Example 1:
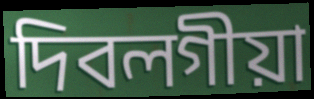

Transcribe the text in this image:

দিবলগীয়া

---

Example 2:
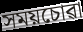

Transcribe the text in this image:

সময়চোৱা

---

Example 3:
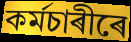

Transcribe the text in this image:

কৰ্মচাৰীৰে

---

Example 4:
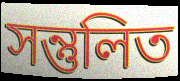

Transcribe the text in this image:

সন্তুলিত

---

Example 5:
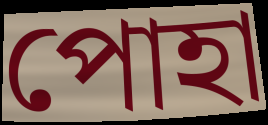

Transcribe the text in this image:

পোহা